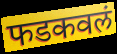
फडकवलं